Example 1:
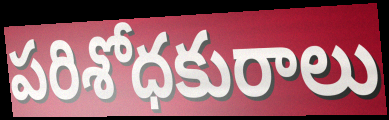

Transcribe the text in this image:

పరిశోధకురాలు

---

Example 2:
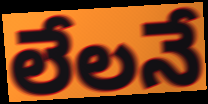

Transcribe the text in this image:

లేలనే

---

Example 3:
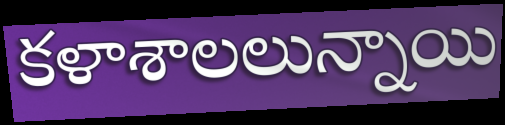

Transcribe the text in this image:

కళాశాలలున్నాయి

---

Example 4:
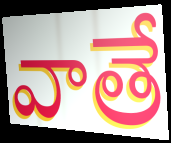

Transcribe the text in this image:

వాతే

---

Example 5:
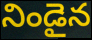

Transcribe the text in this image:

నిండైన